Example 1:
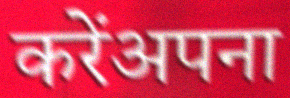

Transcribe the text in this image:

करेंअपना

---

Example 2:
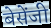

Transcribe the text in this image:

बेसेंजी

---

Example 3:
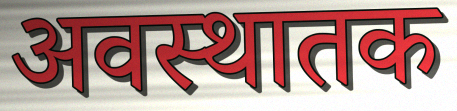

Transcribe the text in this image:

अवस्थातक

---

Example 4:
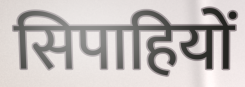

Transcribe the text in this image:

सिपाहियों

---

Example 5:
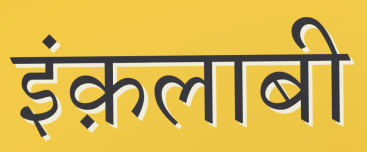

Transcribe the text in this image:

इंक़लाबी